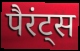
पैरंट्स